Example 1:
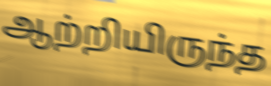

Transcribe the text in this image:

ஆற்றியிருந்த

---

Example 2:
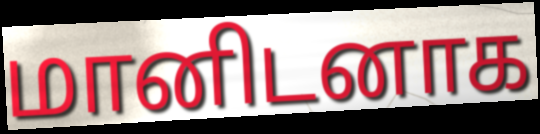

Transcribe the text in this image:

மானிடனாக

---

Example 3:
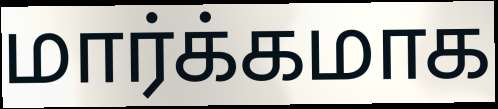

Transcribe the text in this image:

மார்க்கமாக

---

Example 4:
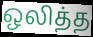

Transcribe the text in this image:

ஒலித்த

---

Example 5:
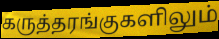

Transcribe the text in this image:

கருத்தரங்குகளிலும்